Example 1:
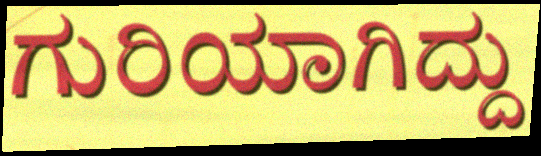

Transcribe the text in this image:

ಗುರಿಯಾಗಿದ್ದು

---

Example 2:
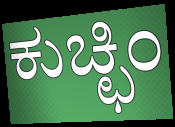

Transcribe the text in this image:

ಕುಚ್ಛಿಂ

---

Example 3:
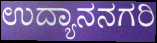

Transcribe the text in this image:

ಉದ್ಯಾನನಗರಿ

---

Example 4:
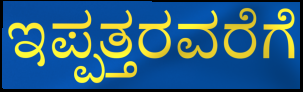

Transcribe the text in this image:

ಇಪ್ಪತ್ತರವರೆಗೆ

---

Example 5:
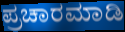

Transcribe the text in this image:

ಪ್ರಚಾರಮಾಡಿ